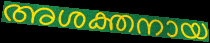
അശക്തനായ